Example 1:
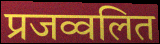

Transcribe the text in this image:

प्रजव्वलित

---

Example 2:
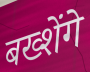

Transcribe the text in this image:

बख्शेंगे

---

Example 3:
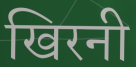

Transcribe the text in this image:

खिरनी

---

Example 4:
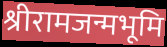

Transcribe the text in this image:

श्रीरामजन्मभूमि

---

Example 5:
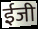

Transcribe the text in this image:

ईजी